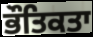
ਭੌਤਿਕਤਾ